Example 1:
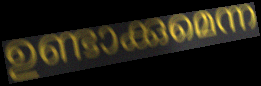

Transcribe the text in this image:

ഉണ്ടാക്കുമെന്ന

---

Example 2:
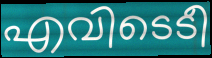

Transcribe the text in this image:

എവിടെടീ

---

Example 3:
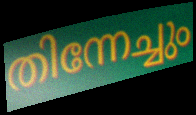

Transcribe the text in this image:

തിന്നേച്ചും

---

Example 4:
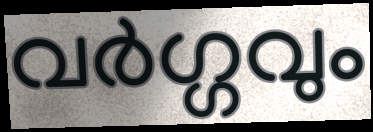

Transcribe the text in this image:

വർഗ്ഗവും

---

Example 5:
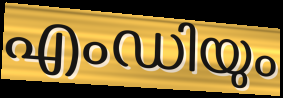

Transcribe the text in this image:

എംഡിയും